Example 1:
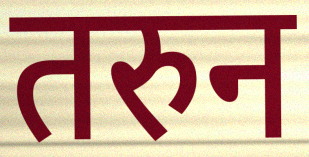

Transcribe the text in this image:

तरुन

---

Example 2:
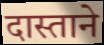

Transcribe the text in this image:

दास्ताने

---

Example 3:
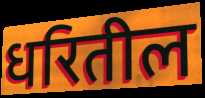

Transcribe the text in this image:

धरितील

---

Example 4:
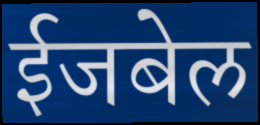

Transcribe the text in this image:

ईजबेल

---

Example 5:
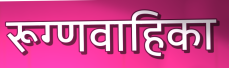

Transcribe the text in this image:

रूग्णवाहिका